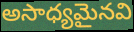
అసాధ్యమైనవి